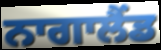
ਨਾਗਾਲੈਂਡ